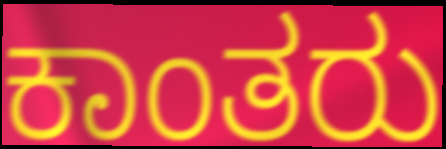
ಕಾಂತರು